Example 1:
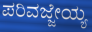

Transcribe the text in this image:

ಪರಿವಜ್ಜೇಯ್ಯ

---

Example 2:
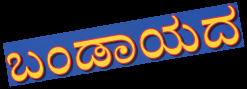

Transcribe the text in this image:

ಬಂಡಾಯದ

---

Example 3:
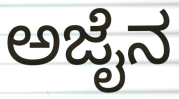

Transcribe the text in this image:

ಅಜೈನ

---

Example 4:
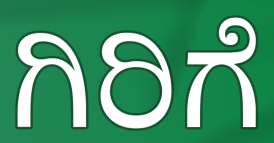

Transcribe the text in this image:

ಗಿರಿಗೆ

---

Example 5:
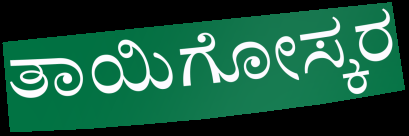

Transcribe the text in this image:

ತಾಯಿಗೋಸ್ಕರ